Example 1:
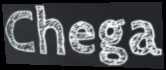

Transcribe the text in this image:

Chega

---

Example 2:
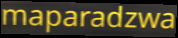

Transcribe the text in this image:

maparadzwa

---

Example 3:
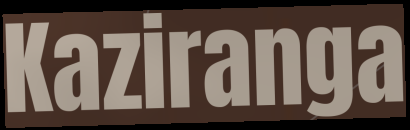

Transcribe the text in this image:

Kaziranga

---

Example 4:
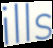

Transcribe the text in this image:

ills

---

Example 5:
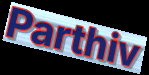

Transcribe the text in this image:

Parthiv